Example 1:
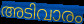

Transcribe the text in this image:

അടിവാരം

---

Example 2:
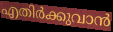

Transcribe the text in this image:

എതിർക്കുവാൻ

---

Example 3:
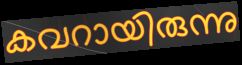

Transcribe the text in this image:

കവറായിരുന്നു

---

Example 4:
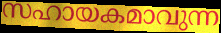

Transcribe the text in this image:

സഹായകമാവുന്ന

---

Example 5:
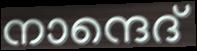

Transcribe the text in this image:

നാന്ദെദ്